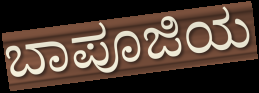
ಬಾಪೂಜಿಯ